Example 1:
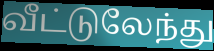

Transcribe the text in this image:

வீட்டுலேந்து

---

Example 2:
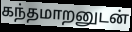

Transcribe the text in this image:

கந்தமாறனுடன்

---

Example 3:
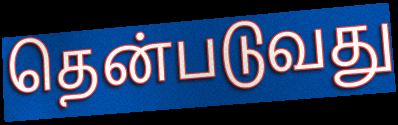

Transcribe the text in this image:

தென்படுவது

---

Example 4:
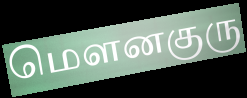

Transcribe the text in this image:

மௌனகுரு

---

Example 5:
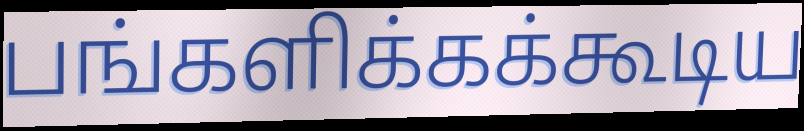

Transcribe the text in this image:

பங்களிக்கக்கூடிய